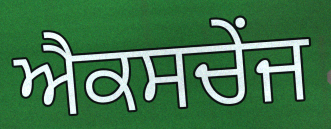
ਐਕਸਚੇਂਜ